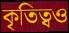
কৃতিত্বও